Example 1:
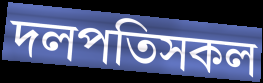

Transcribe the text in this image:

দলপতিসকল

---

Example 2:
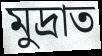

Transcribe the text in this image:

মুদ্ৰাত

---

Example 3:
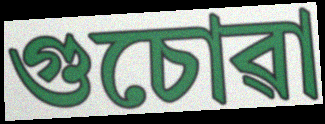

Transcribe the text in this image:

গুচোৱা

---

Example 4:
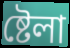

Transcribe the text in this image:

ষ্টেলা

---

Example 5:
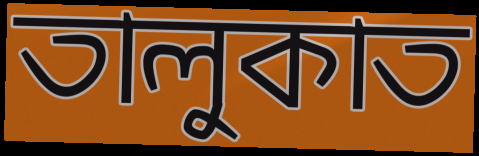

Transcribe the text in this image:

তালুকাত